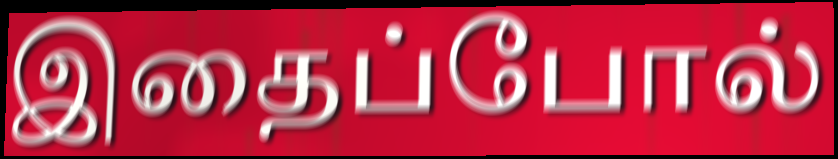
இதைப்போல்